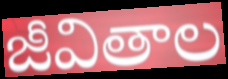
జీవితాల